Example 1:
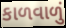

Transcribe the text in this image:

કાળવાળું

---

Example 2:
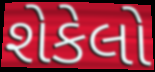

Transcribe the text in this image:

શેકેલો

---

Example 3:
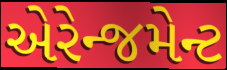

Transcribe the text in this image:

એરેન્જમેન્ટ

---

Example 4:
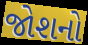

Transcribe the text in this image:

જોશનો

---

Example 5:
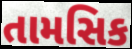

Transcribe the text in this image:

તામસિક